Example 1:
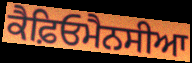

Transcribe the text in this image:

ਕੈਫ਼ਿਓਮੈਨਸੀਆ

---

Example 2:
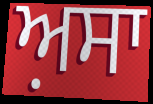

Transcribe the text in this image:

ਅ਼ਸਾ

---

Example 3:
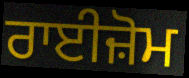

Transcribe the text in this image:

ਰਾਈਜ਼ੋਮ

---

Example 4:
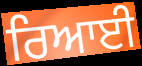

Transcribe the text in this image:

ਰਿਆਈ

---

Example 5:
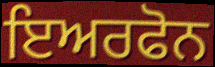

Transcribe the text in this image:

ਇਅਰਫੋਨ